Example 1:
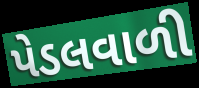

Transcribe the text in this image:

પેડલવાળી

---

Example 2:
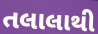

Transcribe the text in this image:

તલાલાથી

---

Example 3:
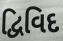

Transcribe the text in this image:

દ્વિવિદ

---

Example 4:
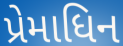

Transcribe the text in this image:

પ્રેમાધિન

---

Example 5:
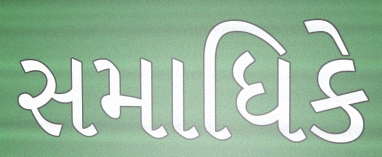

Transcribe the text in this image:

સમાધિકે